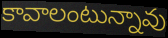
కావాలంటున్నావు